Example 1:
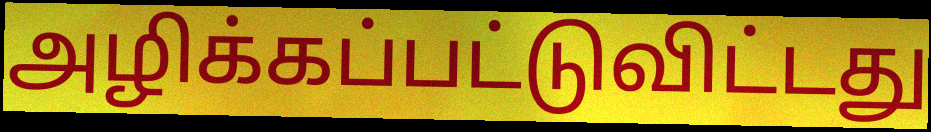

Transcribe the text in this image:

அழிக்கப்பட்டுவிட்டது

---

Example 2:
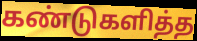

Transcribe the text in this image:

கண்டுகளித்த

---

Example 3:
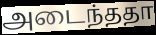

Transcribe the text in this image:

அடைந்ததா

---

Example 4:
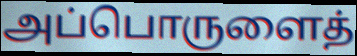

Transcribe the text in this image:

அப்பொருளைத்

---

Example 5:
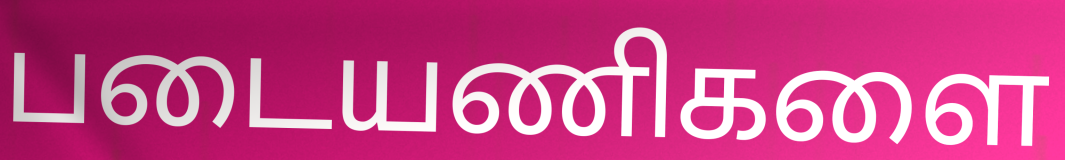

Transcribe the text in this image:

படையணிகளை